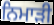
ਨਿਮਾੜੀ